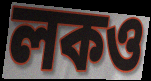
লকও